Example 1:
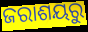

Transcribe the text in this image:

ଜରାଶୟରୁ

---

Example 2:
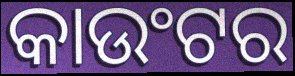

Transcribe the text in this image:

କାଉଂଟର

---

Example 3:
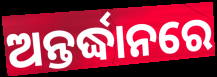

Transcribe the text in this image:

ଅନ୍ତର୍ଦ୍ଧାନରେ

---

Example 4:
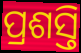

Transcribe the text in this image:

ପ୍ରଶସ୍ତି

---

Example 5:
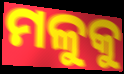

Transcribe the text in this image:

ମଳୁକୁ